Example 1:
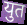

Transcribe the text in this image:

युत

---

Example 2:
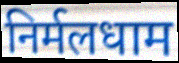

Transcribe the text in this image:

निर्मलधाम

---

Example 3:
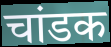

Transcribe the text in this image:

चांडक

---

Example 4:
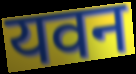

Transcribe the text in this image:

यवन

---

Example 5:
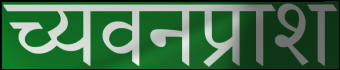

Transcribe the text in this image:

च्यवनप्राश